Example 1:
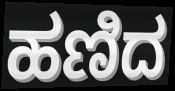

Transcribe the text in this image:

ಹಣಿದ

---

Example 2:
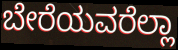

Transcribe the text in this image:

ಬೇರೆಯವರೆಲ್ಲಾ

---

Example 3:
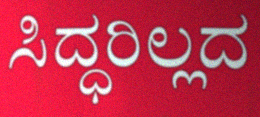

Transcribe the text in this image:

ಸಿದ್ಧರಿಲ್ಲದ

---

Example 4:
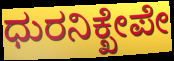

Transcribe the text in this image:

ಧುರನಿಕ್ಖೇಪೇ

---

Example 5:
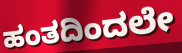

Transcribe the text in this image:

ಹಂತದಿಂದಲೇ